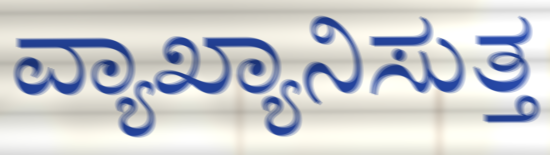
ವ್ಯಾಖ್ಯಾನಿಸುತ್ತ